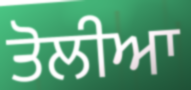
ਤੋਲੀਆ